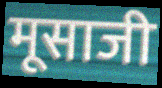
मूसाजी